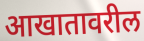
आखातावरील